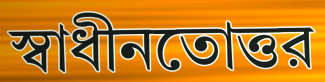
স্বাধীনতোত্তর